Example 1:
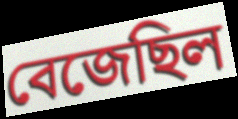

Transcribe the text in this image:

বেজেছিল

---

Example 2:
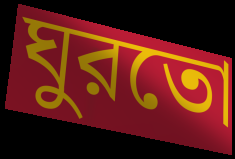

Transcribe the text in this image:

ঘুরতো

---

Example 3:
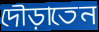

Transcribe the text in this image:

দৌড়াতেন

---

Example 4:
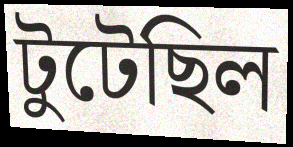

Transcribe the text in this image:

টুটেছিল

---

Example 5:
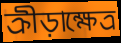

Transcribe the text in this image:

ক্রীড়াক্ষেত্র